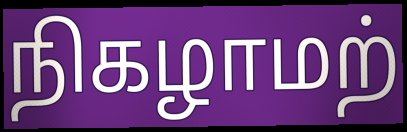
நிகழாமற்